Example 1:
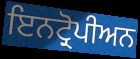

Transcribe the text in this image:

ਇਨਟ੍ਰੋਪੀਅਨ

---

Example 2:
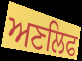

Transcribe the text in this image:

ਅਣਲਿਫ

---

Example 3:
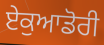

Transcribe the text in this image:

ਏਕੁਆਡੋਰੀ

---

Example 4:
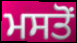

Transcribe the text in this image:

ਮਸਤੋਂ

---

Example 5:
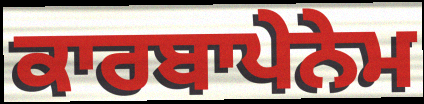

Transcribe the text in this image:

ਕਾਰਬਾਪੇਨੇਮ